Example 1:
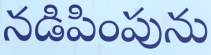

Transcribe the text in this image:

నడిపింపును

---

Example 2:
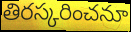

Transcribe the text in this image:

తిరస్కరించనూ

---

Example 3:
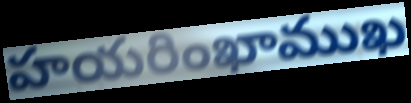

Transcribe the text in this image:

హయరింఖాముఖ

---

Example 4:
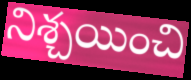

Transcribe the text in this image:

నిశ్చయించి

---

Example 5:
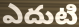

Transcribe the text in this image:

ఎదుటి